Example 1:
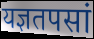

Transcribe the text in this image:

यज्ञतपसां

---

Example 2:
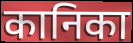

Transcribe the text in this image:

कानिका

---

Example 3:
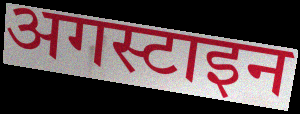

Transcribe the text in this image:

अगस्टाइन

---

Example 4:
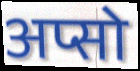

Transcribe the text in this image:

अप्सो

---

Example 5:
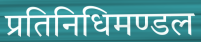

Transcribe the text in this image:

प्रतिनिधिमण्डल